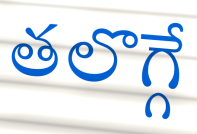
తలొగ్గే